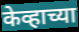
केव्हाच्या